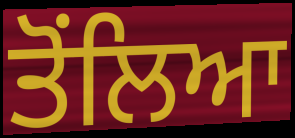
ਤੋਂਲਿਆ